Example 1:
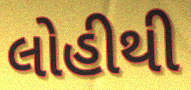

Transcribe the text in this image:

લોહીથી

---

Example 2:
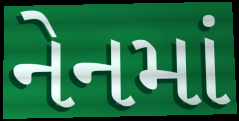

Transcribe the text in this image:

નેનમાં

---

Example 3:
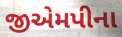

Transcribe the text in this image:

જીએમપીના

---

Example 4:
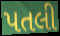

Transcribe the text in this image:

પતલી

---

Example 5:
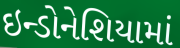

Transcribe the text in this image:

ઇન્ડોનેશિયામાં